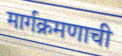
मार्गक्रमणाची